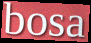
bosa